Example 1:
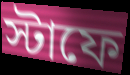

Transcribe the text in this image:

স্টাফে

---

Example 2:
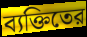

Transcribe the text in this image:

ব্যক্তিতের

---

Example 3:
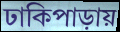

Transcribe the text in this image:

ঢাকিপাড়ায়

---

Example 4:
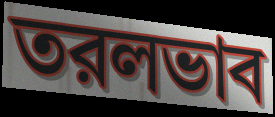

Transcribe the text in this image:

তরলভাব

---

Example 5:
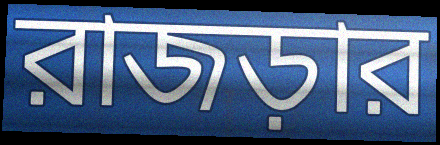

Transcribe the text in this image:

রাজড়ার